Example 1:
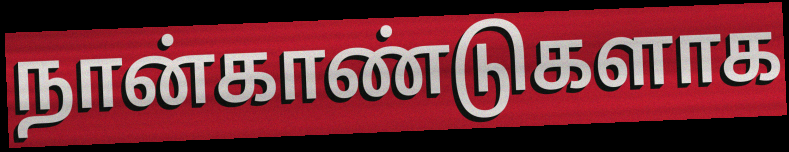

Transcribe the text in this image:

நான்காண்டுகளாக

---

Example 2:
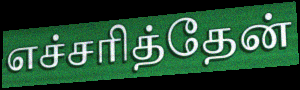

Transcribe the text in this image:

எச்சரித்தேன்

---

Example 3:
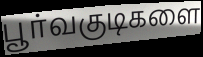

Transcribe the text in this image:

பூர்வகுடிகளை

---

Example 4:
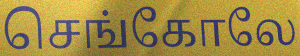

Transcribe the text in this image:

செங்கோலே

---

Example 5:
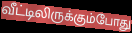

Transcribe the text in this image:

வீட்டிலிருக்கும்போது